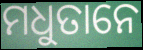
ମଧୁତାନେ